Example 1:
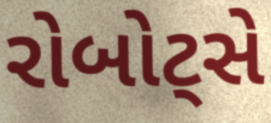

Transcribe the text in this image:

રોબોટ્સે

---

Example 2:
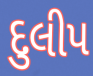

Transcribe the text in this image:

દુલીપ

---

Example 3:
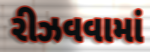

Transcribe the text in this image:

રીઝવવામાં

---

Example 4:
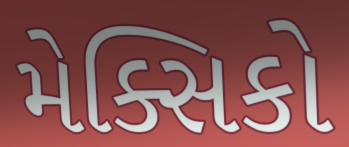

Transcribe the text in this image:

મેક્સિકો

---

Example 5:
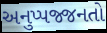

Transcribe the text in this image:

અનુપ્પજ્જનતો